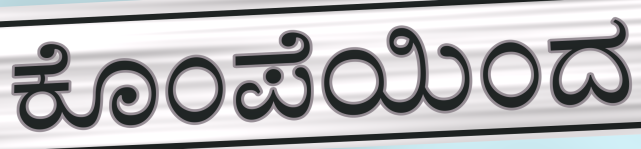
ಕೊಂಪೆಯಿಂದ